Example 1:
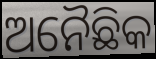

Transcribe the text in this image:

ଅନୈଛିକ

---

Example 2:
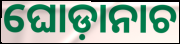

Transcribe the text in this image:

ଘୋଡ଼ାନାଚ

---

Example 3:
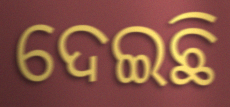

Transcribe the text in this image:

ଦେଇଛି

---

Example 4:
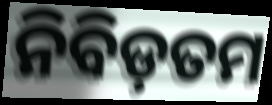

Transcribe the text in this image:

ନିବିଡ଼ତମ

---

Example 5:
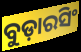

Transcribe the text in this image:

ବୁଡ଼ାରସିଂ